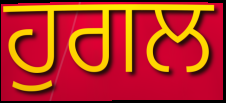
ਹੁਗਲ